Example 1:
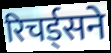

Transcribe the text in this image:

रिचर्ड्सने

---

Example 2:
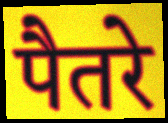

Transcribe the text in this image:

पैतरे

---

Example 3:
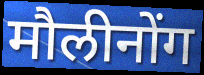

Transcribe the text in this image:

मौलीनोंग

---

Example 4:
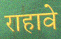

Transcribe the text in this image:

राहावे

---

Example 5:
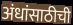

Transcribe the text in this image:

अंधांसाठीची